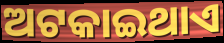
ଅଟକାଇଥାଏ